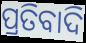
ପ୍ରତିବାଦି